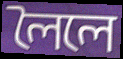
লৈলে